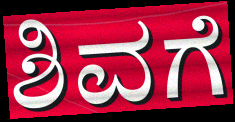
ಶಿವಗೆ